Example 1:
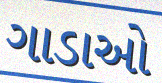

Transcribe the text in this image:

ગાડાઓ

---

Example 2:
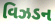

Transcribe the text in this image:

વિઝડન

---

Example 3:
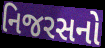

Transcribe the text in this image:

નિજરસનો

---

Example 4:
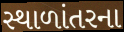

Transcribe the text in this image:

સ્થાળાંતરના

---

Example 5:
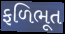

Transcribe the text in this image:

ફળિભૂત